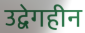
उद्वेगहीन